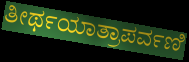
ತೀರ್ಥಯಾತ್ರಾಪರ್ವಣಿ